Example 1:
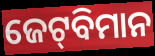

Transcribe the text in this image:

ଜେଟ୍‍ବିମାନ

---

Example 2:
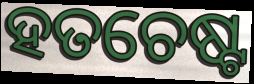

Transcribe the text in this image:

ହତଚେଷ୍ଟ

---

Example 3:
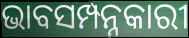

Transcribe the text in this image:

ଭାବସମ୍ପନ୍ନକାରୀ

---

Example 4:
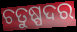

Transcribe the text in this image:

ଚତୁଷ୍ପଦର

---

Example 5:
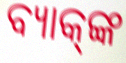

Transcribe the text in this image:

ବ୍ୟାକ୍‍ଙ୍କ